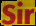
Sir